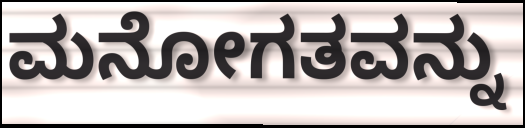
ಮನೋಗತವನ್ನು